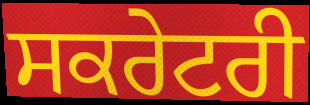
ਸਕਰੇਟਰੀ